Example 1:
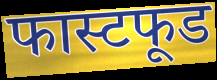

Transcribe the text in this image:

फास्‍टफूड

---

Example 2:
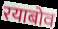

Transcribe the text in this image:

रयाबोव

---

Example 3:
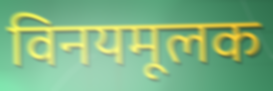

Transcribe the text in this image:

विनयमूलक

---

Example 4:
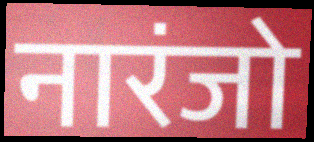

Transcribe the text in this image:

नारंजो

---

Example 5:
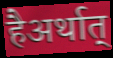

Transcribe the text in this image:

हैअर्थात्